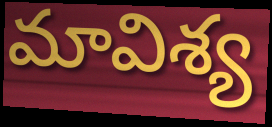
మావిశ్య